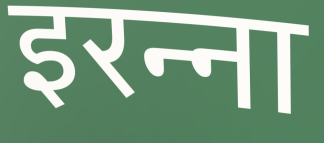
इरन्ना